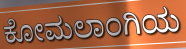
ಕೋಮಲಾಂಗಿಯ